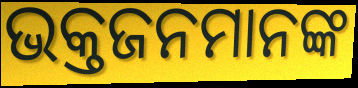
ଭକ୍ତଜନମାନଙ୍କ